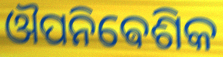
ଔପନିଵେଶିକ